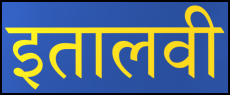
इतालवी